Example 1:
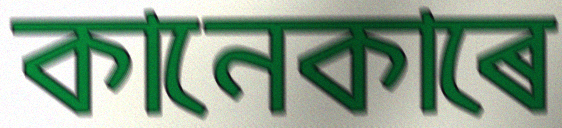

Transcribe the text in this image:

কানেকাৰে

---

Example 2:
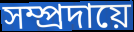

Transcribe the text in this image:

সম্প্ৰদায়ে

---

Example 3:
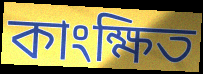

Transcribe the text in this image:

কাংক্ষিত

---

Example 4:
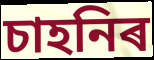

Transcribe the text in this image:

চাহনিৰ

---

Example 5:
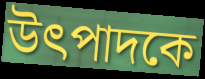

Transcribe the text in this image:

উৎপাদকে